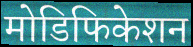
मोडिफिकेशन